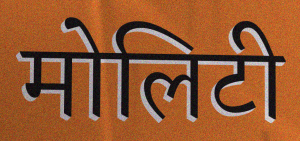
मोलिटी